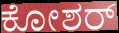
ಕೋಶರ್